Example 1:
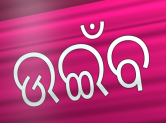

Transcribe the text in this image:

ଉଇଁବ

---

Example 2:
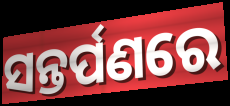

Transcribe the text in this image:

ସନ୍ତର୍ପଣରେ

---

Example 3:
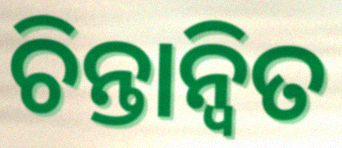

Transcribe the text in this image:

ଚିନ୍ତାନ୍ୱିତ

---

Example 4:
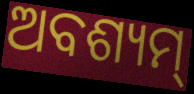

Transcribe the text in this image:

ଅବଶ୍ୟମ୍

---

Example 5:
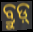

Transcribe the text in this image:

ବ୍ରୁଡ଼୍